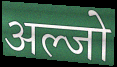
अल्जो